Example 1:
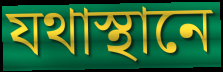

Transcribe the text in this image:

যথাস্থানে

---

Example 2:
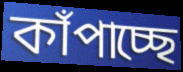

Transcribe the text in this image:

কাঁপাচ্ছে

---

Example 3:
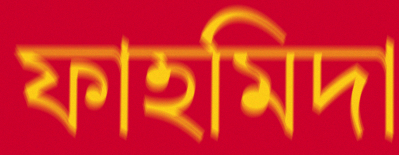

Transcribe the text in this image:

ফাহমিদা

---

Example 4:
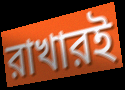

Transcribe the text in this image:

রাখারই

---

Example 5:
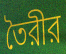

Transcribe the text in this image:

তৈরীর